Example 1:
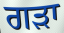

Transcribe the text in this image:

ਗੜਾ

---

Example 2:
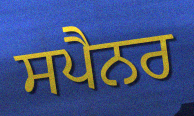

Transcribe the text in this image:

ਸਪੈਨਰ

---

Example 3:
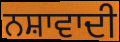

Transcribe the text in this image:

ਨਸ਼ਾਵਾਦੀ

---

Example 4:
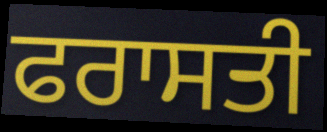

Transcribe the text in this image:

ਫਰਾਸਤੀ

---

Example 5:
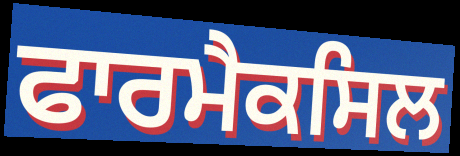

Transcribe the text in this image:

ਫਾਰਮੈਕਸਿਲ